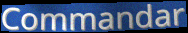
Commandar